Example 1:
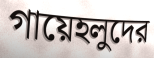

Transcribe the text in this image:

গায়েহলুদের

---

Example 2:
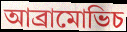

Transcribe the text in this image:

আব্রামোভিচ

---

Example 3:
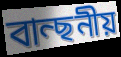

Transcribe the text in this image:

বান্ছনীয়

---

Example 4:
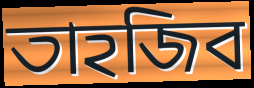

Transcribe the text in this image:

তাহজিব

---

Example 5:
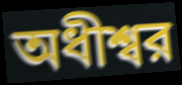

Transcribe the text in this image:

অধীশ্বর